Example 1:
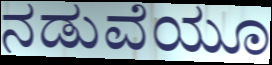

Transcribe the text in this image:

ನಡುವೆಯೂ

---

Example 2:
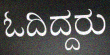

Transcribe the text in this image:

ಓದಿದ್ದರು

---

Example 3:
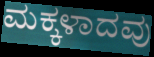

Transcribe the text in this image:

ಮಕ್ಕಳಾದವು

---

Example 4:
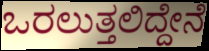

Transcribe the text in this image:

ಒರಲುತ್ತಲಿದ್ದೇನೆ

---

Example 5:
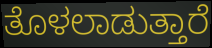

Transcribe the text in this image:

ತೊಳಲಾಡುತ್ತಾರೆ